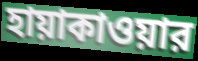
হায়াকাওয়ার